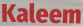
Kaleem